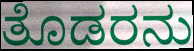
ತೊಡರನು